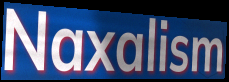
Naxalism